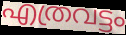
എത്രവട്ടം